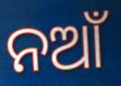
ନଆଁ